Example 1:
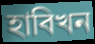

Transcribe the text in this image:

হাবিখন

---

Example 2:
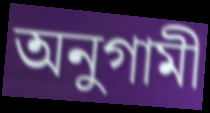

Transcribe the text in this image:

অনুগামী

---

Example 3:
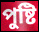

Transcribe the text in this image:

পুষ্টি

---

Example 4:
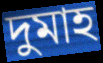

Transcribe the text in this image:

দুমাহ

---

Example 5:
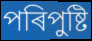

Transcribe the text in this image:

পৰিপুষ্টি